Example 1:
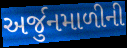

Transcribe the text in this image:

અર્જુનમાળીની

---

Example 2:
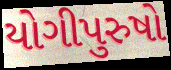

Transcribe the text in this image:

યોગીપુરુષો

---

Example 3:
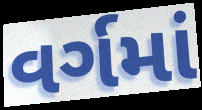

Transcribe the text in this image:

વર્ગમાં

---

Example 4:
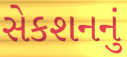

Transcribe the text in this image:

સેકશનનું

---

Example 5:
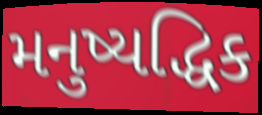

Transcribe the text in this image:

મનુષ્યદ્ધિક